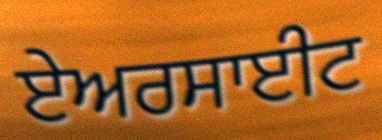
ਏਅਰਸਾਈਟ